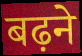
बढ़ने